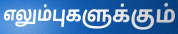
எலும்புகளுக்கும்